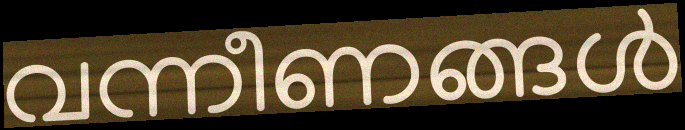
വന്നീണങ്ങൾ